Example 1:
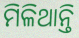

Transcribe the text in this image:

ମିଳିଥାନ୍ତି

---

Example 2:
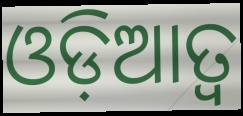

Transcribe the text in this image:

ଓଡ଼ିଆତ୍ୱ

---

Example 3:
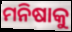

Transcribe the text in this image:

ମନିଷାକୁ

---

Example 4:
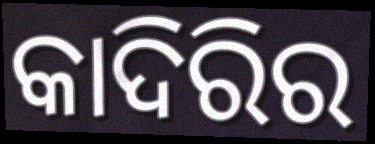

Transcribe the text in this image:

କାଦିରିର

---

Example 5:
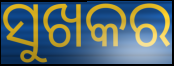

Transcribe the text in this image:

ସୁଖକର